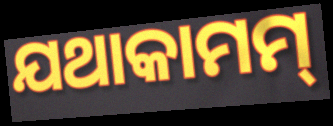
ଯଥାକାମମ୍